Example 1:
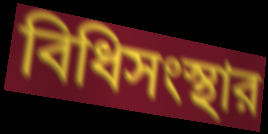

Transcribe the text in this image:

বিধিসংস্থার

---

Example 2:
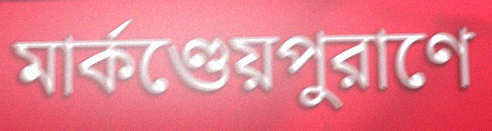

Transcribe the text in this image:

মার্কণ্ডেয়পুরাণে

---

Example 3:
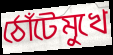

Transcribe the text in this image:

ঠোঁটেমুখে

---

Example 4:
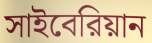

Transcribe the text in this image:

সাইবেরিয়ান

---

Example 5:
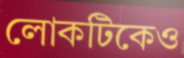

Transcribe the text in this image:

লোকটিকেও